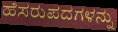
ಹೆಸರುಪದಗಳನ್ನು